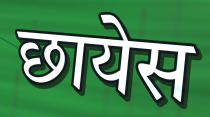
छायेस